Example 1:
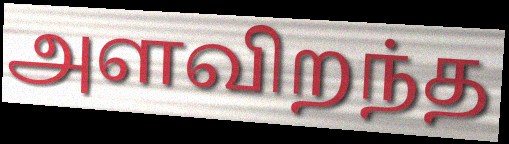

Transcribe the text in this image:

அளவிறந்த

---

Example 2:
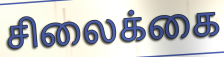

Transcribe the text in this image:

சிலைக்கை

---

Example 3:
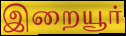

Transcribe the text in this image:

இறையூர்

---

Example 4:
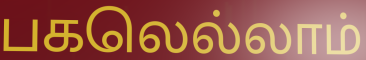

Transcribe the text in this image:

பகலெல்லாம்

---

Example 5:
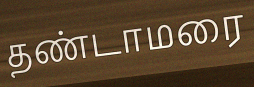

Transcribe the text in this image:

தண்டாமரை